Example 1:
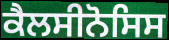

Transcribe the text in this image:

ਕੈਲਸੀਨੋਸਿਸ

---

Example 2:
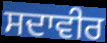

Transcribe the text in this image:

ਸਦਾਵੀਰ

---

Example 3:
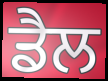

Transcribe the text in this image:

ਡੈਲ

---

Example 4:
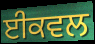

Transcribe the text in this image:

ਈਕਵਲ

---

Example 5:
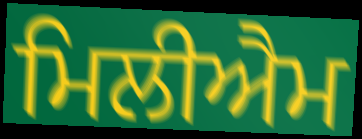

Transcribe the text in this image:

ਮਿਲੀਐਮ